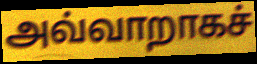
அவ்வாறாகச்